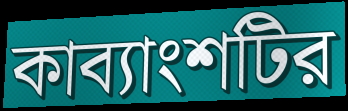
কাব্যাংশটির